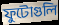
ফুটোগুলি